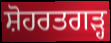
ਸ਼ੋਹਰਤਗੜ੍ਹ